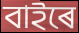
বাইৰে